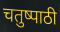
चतुष्पाठी